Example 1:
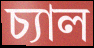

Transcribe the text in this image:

চ্যাল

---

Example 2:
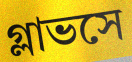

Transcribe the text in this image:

গ্লাভসে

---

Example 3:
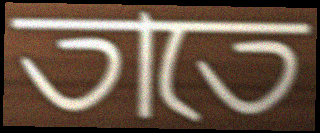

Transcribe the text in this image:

তাতে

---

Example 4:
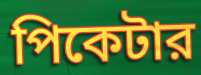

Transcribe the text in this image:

পিকেটার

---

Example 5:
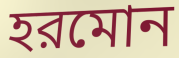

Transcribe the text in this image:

হরমোন